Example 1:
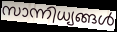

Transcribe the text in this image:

സാന്നിധ്യങ്ങൾ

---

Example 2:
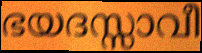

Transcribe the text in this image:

ഭയദസ്സാവീ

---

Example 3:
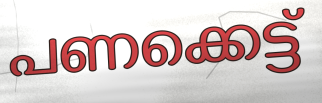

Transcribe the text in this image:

പണക്കെട്ട്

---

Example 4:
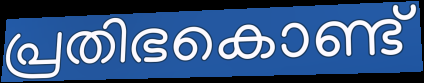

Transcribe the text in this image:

പ്രതിഭകൊണ്ട്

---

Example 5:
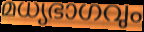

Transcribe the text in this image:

മധ്യഭാഗവും